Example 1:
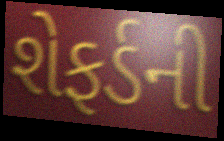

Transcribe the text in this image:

શેફર્ડની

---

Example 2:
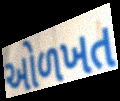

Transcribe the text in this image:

ઓળખત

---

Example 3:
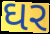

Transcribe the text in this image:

ઘર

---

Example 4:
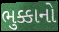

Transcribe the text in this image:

ભુક્કાનો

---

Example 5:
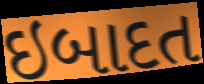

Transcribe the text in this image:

ઇબાદત